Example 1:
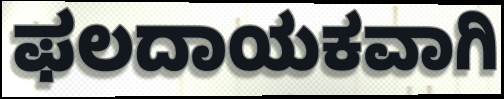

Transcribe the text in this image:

ಫಲದಾಯಕವಾಗಿ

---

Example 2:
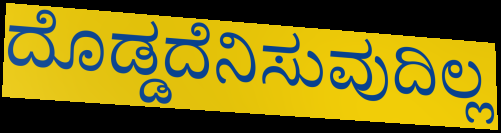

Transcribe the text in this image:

ದೊಡ್ಡದೆನಿಸುವುದಿಲ್ಲ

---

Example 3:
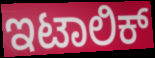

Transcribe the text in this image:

ಇಟಾಲಿಕ್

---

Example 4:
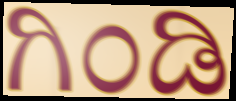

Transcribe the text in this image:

ಗಿಂಡಿ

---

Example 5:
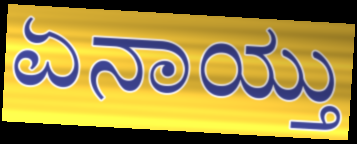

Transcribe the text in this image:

ಏನಾಯ್ತು